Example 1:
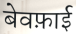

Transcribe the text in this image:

बेवफ़ाई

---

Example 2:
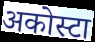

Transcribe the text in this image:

अकोस्टा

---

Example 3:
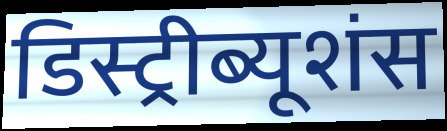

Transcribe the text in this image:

डिस्ट्रीब्यूशंस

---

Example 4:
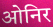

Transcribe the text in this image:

ओनिर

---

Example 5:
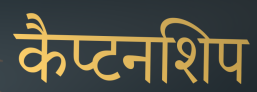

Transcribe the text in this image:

कैप्टनशिप